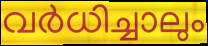
വർധിച്ചാലും